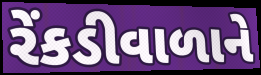
રેંકડીવાળાને